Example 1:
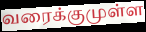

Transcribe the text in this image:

வரைக்குமுள்ள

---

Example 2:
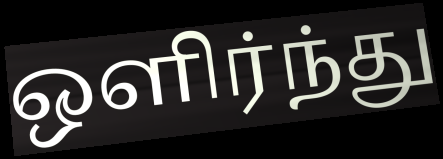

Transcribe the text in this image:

ஒளிர்ந்து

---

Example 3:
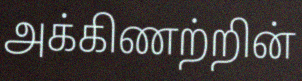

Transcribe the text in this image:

அக்கிணற்றின்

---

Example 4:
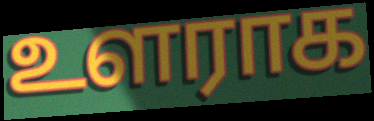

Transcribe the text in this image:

உளராக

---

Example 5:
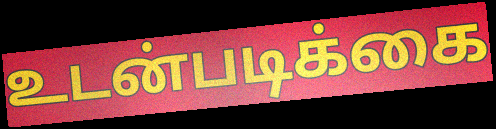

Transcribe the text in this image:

உடன்படிக்கை